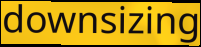
downsizing